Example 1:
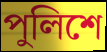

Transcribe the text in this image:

পুলিশে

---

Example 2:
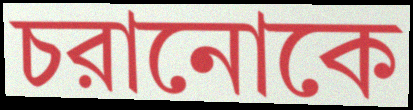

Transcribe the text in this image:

চরানোকে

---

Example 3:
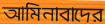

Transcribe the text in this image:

আমিনাবাদের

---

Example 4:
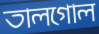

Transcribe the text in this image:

তালগোল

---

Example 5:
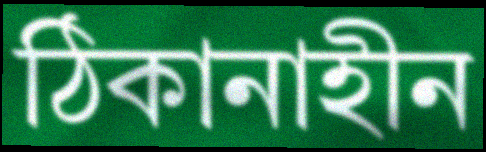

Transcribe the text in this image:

ঠিকানাহীন